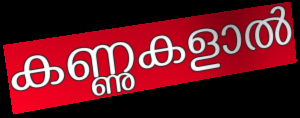
കണ്ണുകളാൽ